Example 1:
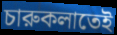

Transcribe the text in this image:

চারুকলাতেই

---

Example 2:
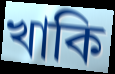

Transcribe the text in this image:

খাকি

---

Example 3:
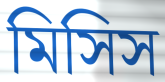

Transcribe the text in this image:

মিসিস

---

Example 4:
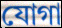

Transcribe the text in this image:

যোগা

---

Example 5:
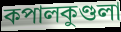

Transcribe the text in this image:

কপালকুণ্ডলা